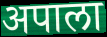
अपाला